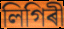
লিগিৰী